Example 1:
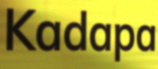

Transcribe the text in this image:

Kadapa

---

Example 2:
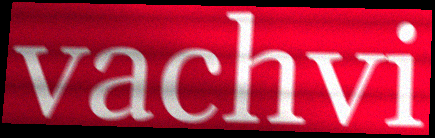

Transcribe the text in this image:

vachvi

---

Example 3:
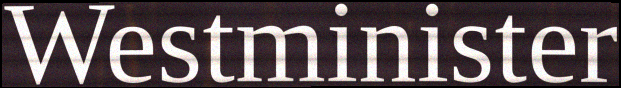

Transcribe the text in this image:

Westminister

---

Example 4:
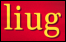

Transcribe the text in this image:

liug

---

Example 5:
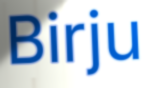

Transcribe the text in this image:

Birju